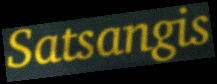
Satsangis